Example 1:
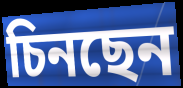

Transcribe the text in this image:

চিনছেন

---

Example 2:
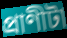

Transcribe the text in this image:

প্রাণীটা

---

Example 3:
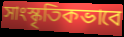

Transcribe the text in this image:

সাংস্কৃতিকভাবে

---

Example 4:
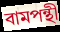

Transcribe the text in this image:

বামপন্থী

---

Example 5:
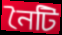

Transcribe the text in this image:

নৈটি